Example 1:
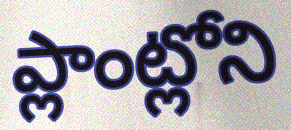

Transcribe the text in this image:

ప్లాంట్లోని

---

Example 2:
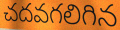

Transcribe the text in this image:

చదవగలిగిన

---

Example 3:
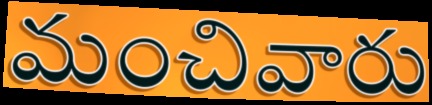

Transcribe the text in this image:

మంచివారు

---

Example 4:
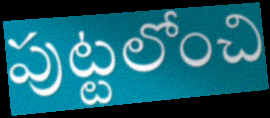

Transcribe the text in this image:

పుట్టలోంచి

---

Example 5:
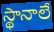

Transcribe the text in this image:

స్థానాలే